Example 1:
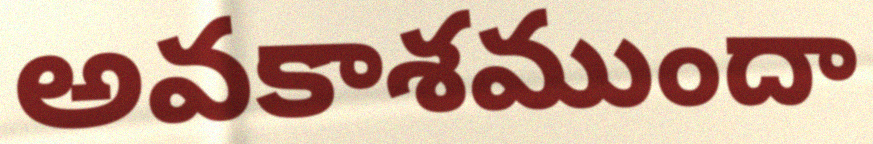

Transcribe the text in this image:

అవకాశముందా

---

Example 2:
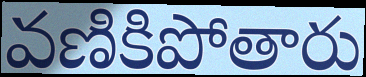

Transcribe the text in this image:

వణికిపోతారు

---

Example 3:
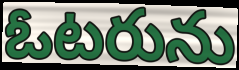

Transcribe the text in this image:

ఓటరును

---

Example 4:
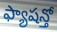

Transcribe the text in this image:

ఫ్యాషన్తో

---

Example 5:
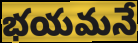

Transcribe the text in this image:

భయమనే